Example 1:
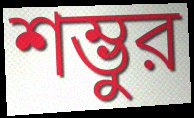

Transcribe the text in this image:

শম্ভুর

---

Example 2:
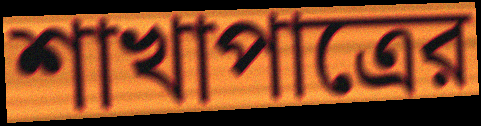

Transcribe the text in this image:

শাখাপাত্রের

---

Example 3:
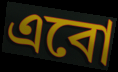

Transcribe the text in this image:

এবো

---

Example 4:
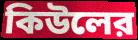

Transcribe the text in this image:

কিউলের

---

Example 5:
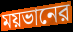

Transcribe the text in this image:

ময়ভানের